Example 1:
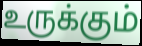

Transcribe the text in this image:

உருக்கும்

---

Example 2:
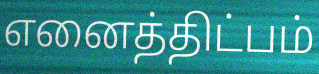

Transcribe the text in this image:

எனைத்திட்பம்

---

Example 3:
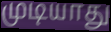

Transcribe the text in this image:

முடியாது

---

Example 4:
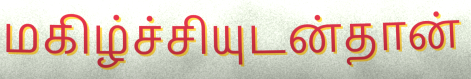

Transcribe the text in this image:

மகிழ்ச்சியுடன்தான்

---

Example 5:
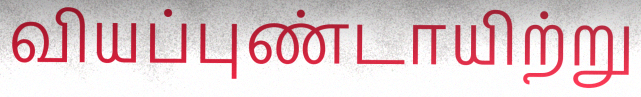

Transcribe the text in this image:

வியப்புண்டாயிற்று